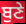
ਬੁਣੇ